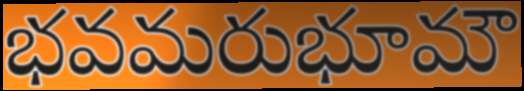
భవమరుభూమౌ